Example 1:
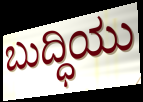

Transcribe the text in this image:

ಬುದ್ಧಿಯು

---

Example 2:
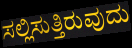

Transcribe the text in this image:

ಸಲ್ಲಿಸುತ್ತಿರುವುದು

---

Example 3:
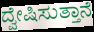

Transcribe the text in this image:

ದ್ವೇಷಿಸುತ್ತಾನೆ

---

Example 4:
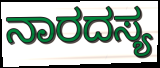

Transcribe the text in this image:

ನಾರದಸ್ಯ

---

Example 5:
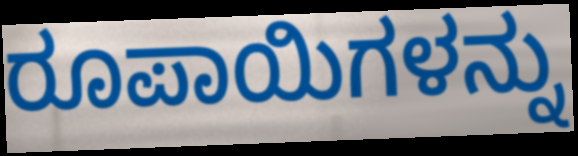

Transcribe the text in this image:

ರೂಪಾಯಿಗಳನ್ನು